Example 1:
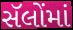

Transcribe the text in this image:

સૅલોંમાં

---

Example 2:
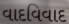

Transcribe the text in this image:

વાદવિવાદ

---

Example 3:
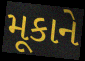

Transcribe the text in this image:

મૂકાને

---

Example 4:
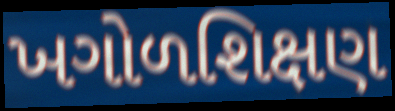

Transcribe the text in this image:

ખગોળશિક્ષણ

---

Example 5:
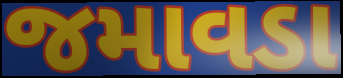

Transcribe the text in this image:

જમાવડા